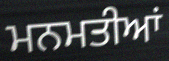
ਮਨਮਤੀਆਂ